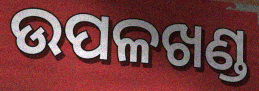
ଉପଳଖଣ୍ଡ